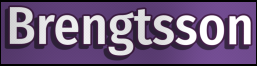
Brengtsson